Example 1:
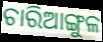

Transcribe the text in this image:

ଚାରିଆଙ୍ଗୁଳ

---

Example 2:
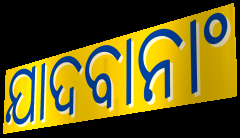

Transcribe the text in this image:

ଯାଦବାନାଂ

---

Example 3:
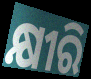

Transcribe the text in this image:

କ୍ଷୀରି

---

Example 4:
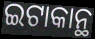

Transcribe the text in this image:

ଇଟାକାନ୍ଥ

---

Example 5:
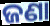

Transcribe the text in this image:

ଜଣା